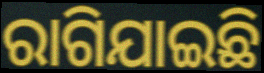
ରାଗିଯାଇଛି